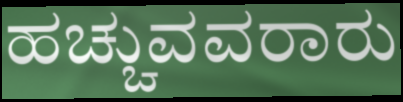
ಹಚ್ಚುವವರಾರು